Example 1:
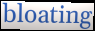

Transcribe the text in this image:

bloating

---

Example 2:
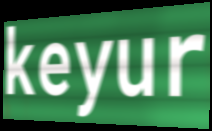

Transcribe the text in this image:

keyur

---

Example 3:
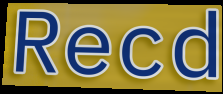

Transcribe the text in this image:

Recd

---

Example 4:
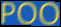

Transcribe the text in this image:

POO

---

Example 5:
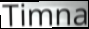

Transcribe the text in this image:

Timna